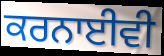
ਕਰਨਾਈਵੀ